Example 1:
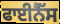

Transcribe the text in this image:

ਫਾਈਨੈੱਸ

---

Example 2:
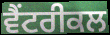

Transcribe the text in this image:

ਵੈਂਟਰੀਕਲ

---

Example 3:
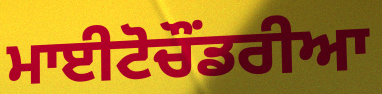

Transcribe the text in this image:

ਮਾਈਟੋਚੌਂਡਰੀਆ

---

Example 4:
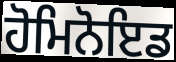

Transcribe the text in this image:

ਹੋਮਿਨੋਇਡ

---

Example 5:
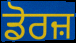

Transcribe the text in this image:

ਡੋਰਜ਼